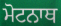
ਮੋਟਨਾਥ